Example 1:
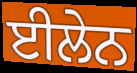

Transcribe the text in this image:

ਈਲੇਨ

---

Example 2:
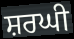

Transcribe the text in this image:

ਸ਼ਰਘੀ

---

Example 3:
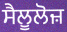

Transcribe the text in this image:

ਸੈਲੂਲੋਜ਼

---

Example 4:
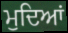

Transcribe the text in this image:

ਮੁਦਿਆਂ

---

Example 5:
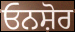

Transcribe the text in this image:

ਓਨਸ਼ੋਰ